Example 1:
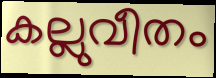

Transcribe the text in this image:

കല്ലുവീതം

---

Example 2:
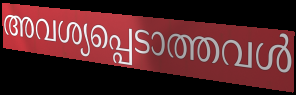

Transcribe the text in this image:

അവശ്യപ്പെടാത്തവൾ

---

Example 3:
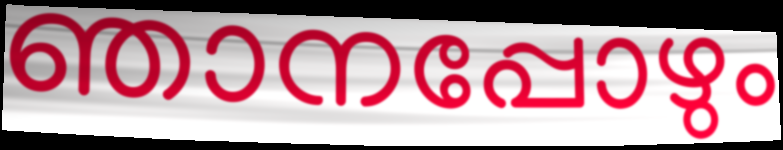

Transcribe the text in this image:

ഞാനപ്പോഴും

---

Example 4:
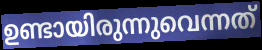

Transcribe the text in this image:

ഉണ്ടായിരുന്നുവെന്നത്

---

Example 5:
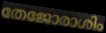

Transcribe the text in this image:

തേജോരാശിം